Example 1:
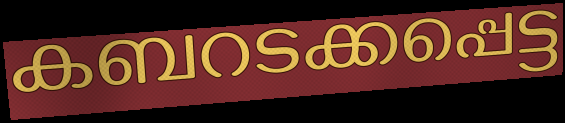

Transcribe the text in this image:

കബറടക്കപ്പെട്ട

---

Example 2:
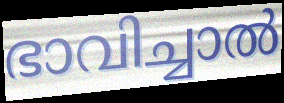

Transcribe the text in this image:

ഭാവിച്ചാൽ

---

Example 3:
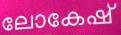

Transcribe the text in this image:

ലോകേഷ്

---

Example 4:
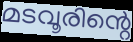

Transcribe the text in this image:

മടവൂരിന്റെ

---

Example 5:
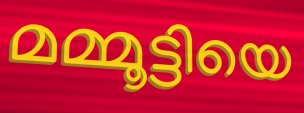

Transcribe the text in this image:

മമ്മൂട്ടിയെ